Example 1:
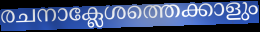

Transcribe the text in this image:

രചനാക്ലേശത്തെക്കാളും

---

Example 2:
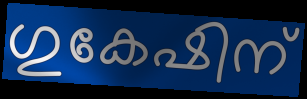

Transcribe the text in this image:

ഗുകേഷിന്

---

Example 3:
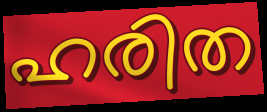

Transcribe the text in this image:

ഹരിത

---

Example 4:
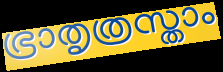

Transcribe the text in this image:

ഭ്രാതൃത്രസ്താം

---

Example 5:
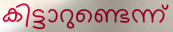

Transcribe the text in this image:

കിട്ടാറുണ്ടെന്ന്